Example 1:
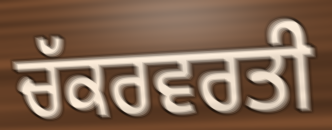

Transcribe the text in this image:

ਚੱਕਰਵਰਤੀ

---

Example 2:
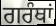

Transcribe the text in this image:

ਗਰੰਥਾਂ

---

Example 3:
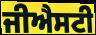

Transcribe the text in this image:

ਜੀਐਸਟੀ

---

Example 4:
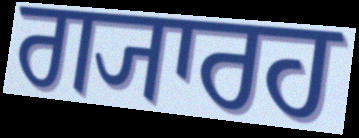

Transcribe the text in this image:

ਗ੍ਯਾਰਹ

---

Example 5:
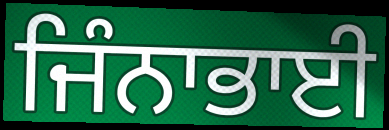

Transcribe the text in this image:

ਜਿੰਨਾਭਾਈ